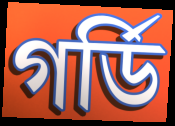
গর্ডি